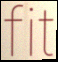
fit